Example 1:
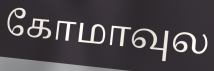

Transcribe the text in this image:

கோமாவுல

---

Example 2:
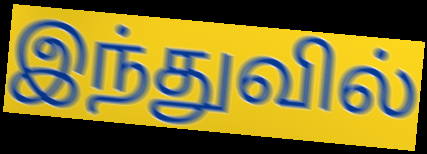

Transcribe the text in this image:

இந்துவில்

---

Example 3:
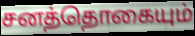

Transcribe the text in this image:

சனத்தொகையும்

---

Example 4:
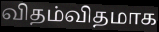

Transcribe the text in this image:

விதம்விதமாக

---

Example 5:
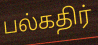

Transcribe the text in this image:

பல்கதிர்